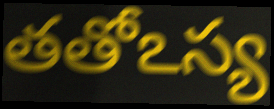
తతోఽస్య